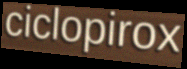
ciclopirox